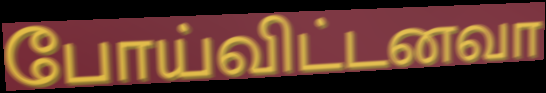
போய்விட்டனவா